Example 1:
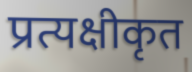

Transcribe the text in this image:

प्रत्यक्षीकृत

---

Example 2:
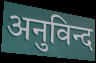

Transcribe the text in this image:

अनुविन्द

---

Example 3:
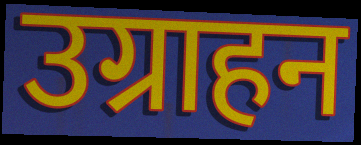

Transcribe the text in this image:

उग्राहन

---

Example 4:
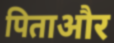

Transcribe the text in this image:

पिताऔर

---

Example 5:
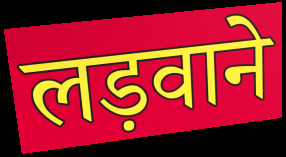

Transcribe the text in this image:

लड़वाने